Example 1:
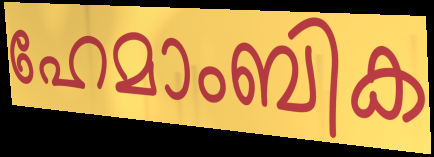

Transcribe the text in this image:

ഹേമാംബിക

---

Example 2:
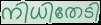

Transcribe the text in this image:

നിധിതേടി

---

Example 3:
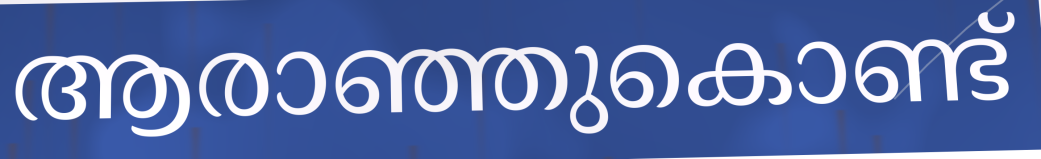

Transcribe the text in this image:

ആരാഞ്ഞുകൊണ്ട്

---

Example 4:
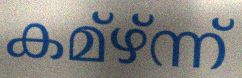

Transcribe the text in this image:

കമ്ഴ്ന്ന്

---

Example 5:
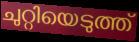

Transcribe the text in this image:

ചുറ്റിയെടുത്ത്